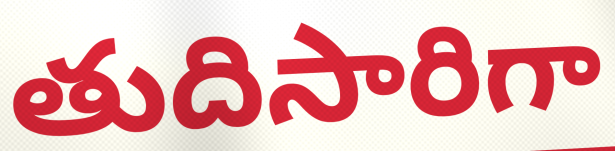
తుదిసారిగా